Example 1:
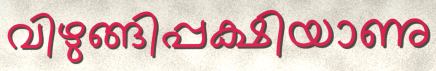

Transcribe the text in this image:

വിഴുങ്ങിപ്പക്ഷിയാണു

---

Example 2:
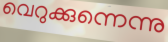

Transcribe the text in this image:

വെറുക്കുന്നെന്നു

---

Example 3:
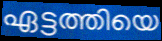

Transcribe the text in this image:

ഏട്ടത്തിയെ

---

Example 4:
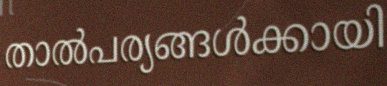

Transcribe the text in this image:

താൽപര്യങ്ങൾക്കായി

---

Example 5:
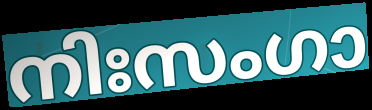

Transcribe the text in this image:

നിഃസംഗാ